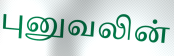
புனுவலின்